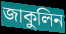
জাকুলিন